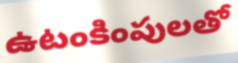
ఉటంకింపులతో